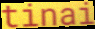
tinai